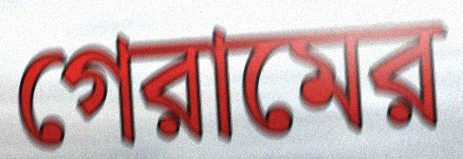
গেরামের